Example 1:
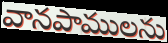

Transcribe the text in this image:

వానపాములను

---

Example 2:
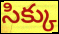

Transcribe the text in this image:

సిక్కు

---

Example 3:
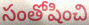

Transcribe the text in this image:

సంతోషించి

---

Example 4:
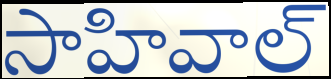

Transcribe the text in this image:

సాహివాల్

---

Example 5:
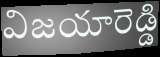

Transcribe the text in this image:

విజయారెడ్డి